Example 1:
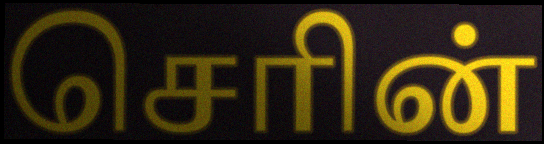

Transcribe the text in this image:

செரின்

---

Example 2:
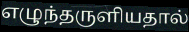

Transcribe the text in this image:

எழுந்தருளியதால்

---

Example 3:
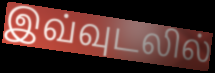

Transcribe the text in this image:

இவ்வுடலில்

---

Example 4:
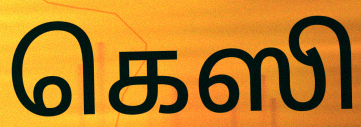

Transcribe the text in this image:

கெஸி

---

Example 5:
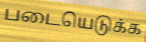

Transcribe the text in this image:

படையெடுக்க